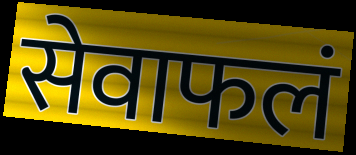
सेवाफलं